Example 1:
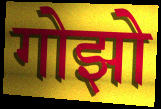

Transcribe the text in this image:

गोझो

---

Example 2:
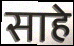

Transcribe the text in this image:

साहे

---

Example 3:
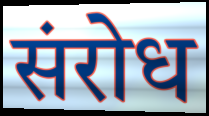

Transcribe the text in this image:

संरोध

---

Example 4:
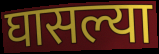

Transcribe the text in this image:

घासल्या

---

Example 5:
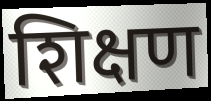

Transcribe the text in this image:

शिक्षण